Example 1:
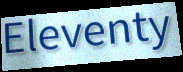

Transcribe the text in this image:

Eleventy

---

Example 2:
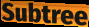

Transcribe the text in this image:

Subtree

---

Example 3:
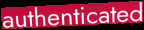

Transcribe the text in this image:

authenticated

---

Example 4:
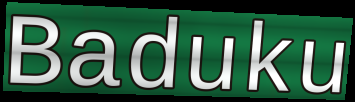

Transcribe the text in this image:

Baduku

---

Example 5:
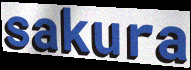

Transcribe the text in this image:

sakura